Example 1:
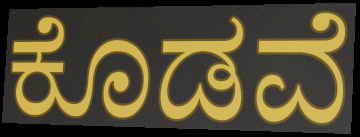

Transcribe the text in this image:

ಕೊಡವೆ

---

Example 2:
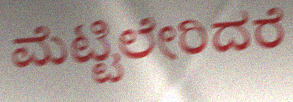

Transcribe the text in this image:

ಮೆಟ್ಟಿಲೇರಿದರೆ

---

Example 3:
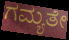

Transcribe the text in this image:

ಗಮ್ಯತೇ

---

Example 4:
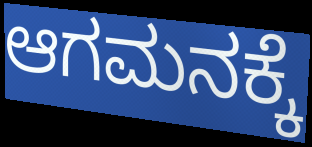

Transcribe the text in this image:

ಆಗಮನಕ್ಕೆ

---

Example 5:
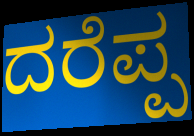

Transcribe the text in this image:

ದರೆಪ್ಪ